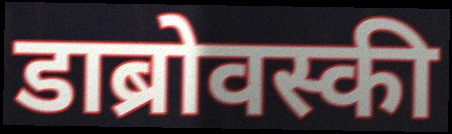
डाब्रोवस्की